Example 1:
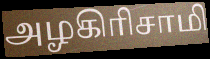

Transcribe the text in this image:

அழகிரிசாமி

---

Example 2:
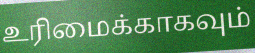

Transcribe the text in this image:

உரிமைக்காகவும்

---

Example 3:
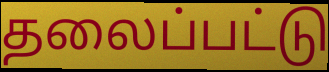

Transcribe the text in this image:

தலைப்பட்டு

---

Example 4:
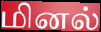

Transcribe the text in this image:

மினல்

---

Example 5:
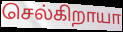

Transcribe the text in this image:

செல்கிறாயா